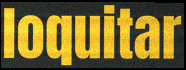
loquitar